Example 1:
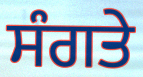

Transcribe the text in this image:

ਸੰਗਤੇ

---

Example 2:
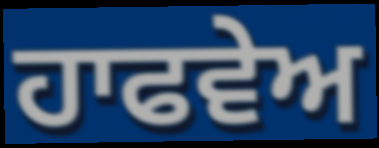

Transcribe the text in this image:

ਹਾਫਵੇਅ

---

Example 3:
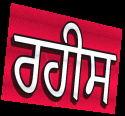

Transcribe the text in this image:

ਰਹੀਸ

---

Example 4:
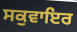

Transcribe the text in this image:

ਸਕੁਵਾਇਰ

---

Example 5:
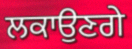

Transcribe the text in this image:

ਲਕਾਉਣਗੇ